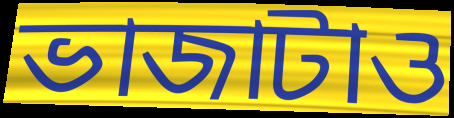
ভাজাটাও